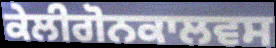
ਕੇਲੀਗੋਨਕਾਲਵਸ